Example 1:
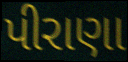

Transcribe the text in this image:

પીરાણા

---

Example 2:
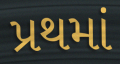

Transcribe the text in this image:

પ્રથમાં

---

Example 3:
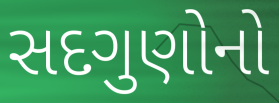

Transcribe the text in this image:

સદગુણોનો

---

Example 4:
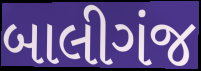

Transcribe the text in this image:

બાલીગંજ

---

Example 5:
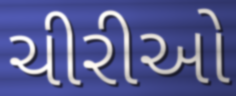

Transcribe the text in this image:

ચીરીઓ